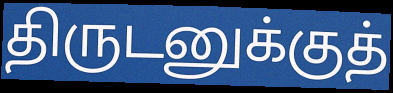
திருடனுக்குத்